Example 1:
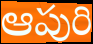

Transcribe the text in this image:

ఆపురి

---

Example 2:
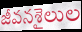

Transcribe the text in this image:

జీవనశైలుల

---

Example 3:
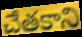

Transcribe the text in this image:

చేతకాని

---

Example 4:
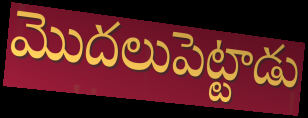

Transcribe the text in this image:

మొదలుపెట్టాడు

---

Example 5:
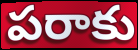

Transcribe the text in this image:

పరాకు